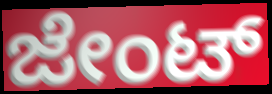
ಜೇಂಟ್